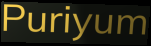
Puriyum